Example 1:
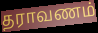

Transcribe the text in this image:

தராவணம்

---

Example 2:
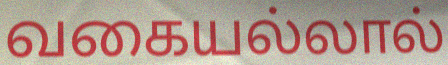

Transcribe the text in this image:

வகையல்லால்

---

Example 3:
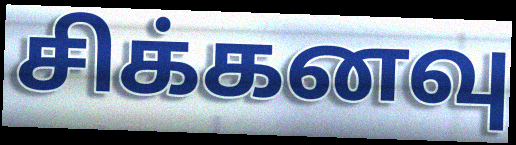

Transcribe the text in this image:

சிக்கனவு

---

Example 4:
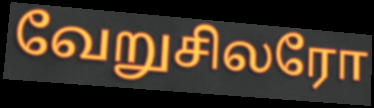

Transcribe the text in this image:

வேறுசிலரோ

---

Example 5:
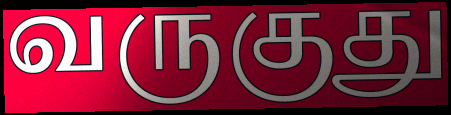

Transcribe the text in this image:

வருகுது